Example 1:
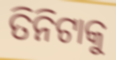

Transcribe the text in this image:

ତିନିଟାକୁ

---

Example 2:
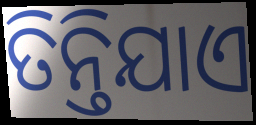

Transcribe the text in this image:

ତିନ୍ତିଯାଏ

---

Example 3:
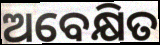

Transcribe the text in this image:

ଅବେକ୍ଷିତ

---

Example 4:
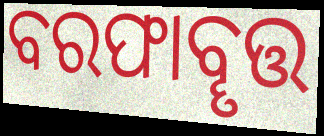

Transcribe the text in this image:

ବରଫାବୄତ୍ତ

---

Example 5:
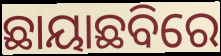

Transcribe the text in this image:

ଛାୟାଛବିରେ